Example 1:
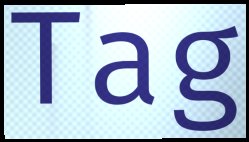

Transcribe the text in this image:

Tag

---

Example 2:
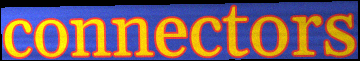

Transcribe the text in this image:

connectors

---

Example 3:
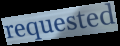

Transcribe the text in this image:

requested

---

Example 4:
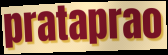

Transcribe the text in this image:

prataprao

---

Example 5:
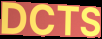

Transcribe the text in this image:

DCTS